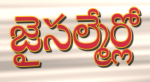
జైసల్మేర్లో